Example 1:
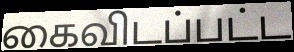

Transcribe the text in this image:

கைவிடப்பட்ட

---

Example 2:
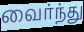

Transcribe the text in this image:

வைர்ந்து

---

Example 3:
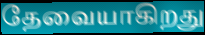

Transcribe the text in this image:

தேவையாகிறது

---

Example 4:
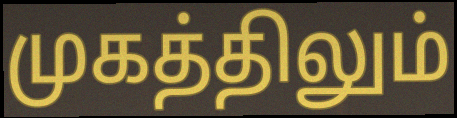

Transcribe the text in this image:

முகத்திலும்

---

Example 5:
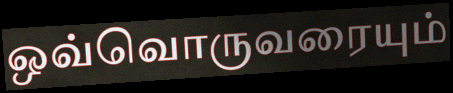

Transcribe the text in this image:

ஒவ்வொருவரையும்